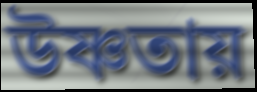
উষ্ণতায়